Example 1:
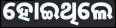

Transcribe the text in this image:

ହୋଇଥିଲେ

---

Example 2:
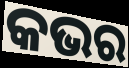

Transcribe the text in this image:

କଭର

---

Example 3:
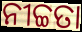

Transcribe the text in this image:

ନୀଚ୍ଚତା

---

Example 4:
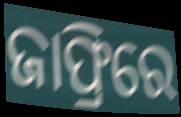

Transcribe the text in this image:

ଜାଫ୍ରିରେ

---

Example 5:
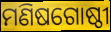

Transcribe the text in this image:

ମଣିଷଗୋଷ୍ଠୀ